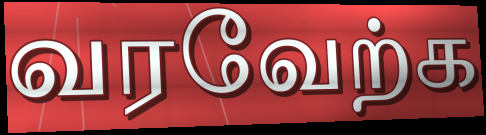
வரவேற்க